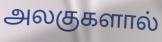
அலகுகளால்